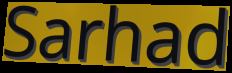
Sarhad